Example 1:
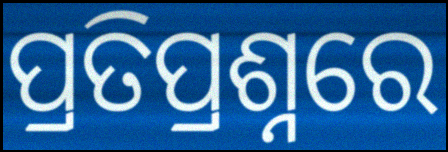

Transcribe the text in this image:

ପ୍ରତିପ୍ରଶ୍ନରେ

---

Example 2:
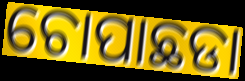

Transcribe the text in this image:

ଚୋପାଛଡା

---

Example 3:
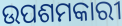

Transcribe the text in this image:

ଉପଶମକାରୀ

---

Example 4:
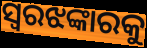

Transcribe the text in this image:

ସ୍ୱରଝଙ୍କାରକୁ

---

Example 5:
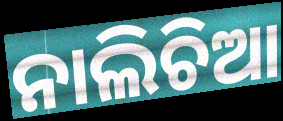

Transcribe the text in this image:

ନାଲିଚିଆ